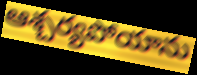
ఆశ్చర్యపోయాను